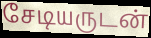
சேடியருடன்